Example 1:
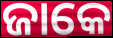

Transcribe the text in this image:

ଜାକେ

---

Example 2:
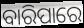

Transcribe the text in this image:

ବାରିପାରେ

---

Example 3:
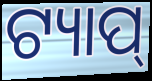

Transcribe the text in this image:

ଟ୍ୟାପ୍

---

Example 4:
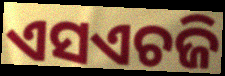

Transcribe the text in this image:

ଏସଏଚଜି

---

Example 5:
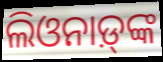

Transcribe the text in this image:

ଲିଓନାଡ଼୍‌ଙ୍କ